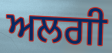
ਅਲਗੀ